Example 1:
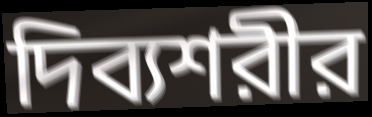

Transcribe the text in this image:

দিব্যশরীর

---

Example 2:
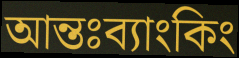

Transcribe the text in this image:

আন্তঃব্যাংকিং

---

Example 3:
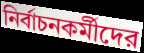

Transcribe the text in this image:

নির্বাচনকর্মীদের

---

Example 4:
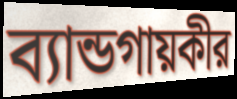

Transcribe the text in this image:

ব্যান্ডগায়কীর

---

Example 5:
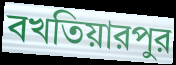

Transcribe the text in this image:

বখতিয়ারপুর